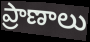
ప్రాణాలు